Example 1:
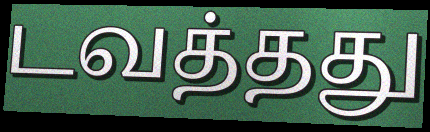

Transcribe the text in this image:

டவத்தது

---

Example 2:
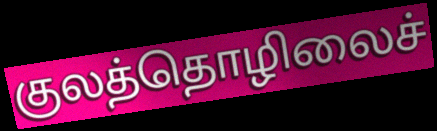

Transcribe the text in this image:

குலத்தொழிலைச்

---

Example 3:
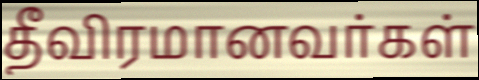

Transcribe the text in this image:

தீவிரமானவர்கள்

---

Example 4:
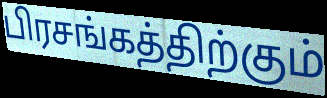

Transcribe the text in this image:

பிரசங்கத்திற்கும்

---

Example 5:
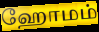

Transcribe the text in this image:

ஹோமம்